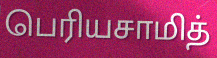
பெரியசாமித்